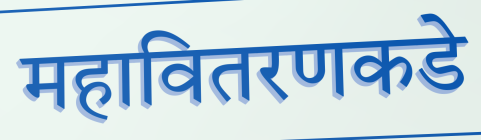
महावितरणकडे